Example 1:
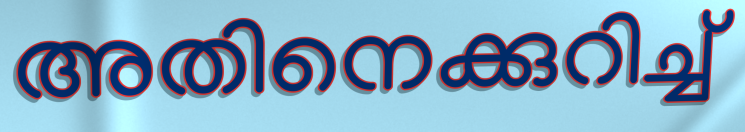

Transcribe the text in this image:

അതിനെക്കുറിച്ച്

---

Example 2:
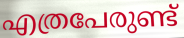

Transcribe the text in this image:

എത്രപേരുണ്ട്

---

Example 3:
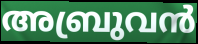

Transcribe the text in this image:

അബ്രുവൻ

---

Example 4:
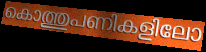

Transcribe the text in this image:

കൊത്തുപണികളിലോ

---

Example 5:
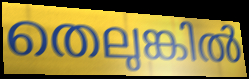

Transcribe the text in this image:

തെലുങ്കിൽ